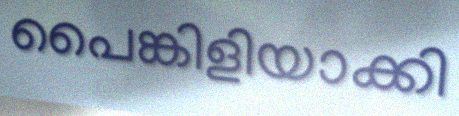
പൈങ്കിളിയാക്കി